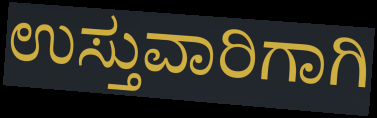
ಉಸ್ತುವಾರಿಗಾಗಿ